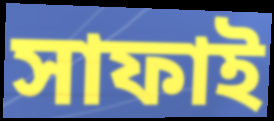
সাফাই